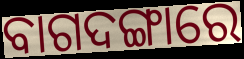
ବାଗଦଙ୍ଗାରେ